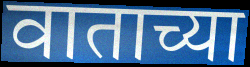
वाताच्या